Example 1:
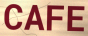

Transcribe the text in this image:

CAFE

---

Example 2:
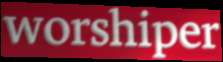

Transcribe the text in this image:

worshiper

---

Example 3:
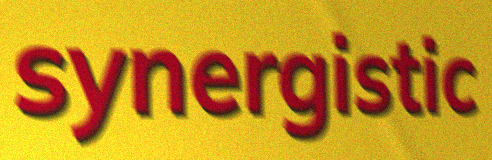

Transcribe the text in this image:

synergistic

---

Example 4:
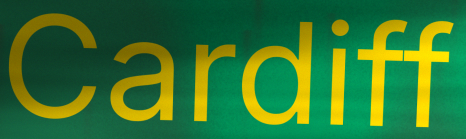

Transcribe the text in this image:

Cardiff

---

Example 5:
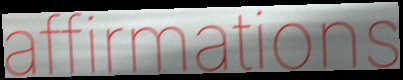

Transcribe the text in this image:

affirmations